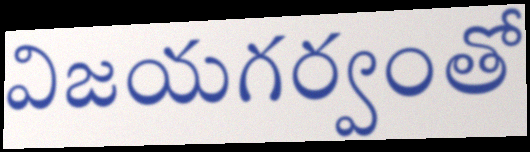
విజయగర్వంతో